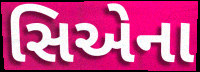
સિએના